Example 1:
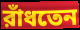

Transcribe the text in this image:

রাঁধতেন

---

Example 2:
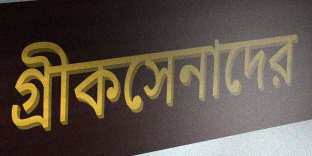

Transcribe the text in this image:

গ্রীকসেনাদের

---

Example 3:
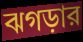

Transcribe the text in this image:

ঝগড়ার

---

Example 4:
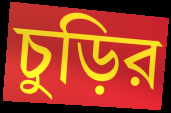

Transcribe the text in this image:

চুড়ির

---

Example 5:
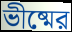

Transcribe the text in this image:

ভীষ্মের